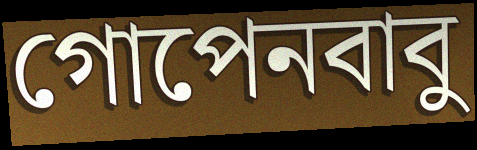
গোপেনবাবু